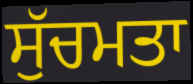
ਸੁੱਚਮਤਾ